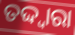
ତଦ୍ଦ୍ଵାରା